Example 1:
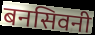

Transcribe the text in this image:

बनसिवनी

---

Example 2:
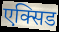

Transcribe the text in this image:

एक्सिड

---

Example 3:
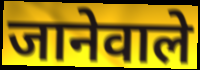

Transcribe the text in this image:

जानेवाले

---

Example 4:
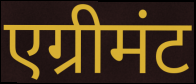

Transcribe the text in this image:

एग्रीमंट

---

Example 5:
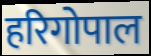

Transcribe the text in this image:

हरिगोपाल